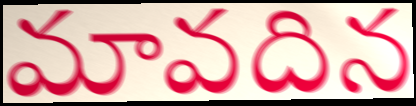
మావదిన